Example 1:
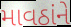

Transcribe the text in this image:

માવઠાંને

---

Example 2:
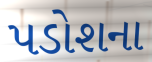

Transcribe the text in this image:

પડોશના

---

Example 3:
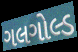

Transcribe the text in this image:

ગલગોલ્ડ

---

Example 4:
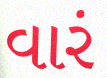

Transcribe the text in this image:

વારં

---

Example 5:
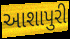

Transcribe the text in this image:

આશાપુરી